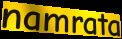
namrata